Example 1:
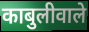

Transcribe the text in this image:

काबुलीवाले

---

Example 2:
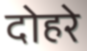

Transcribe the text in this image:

दोहरे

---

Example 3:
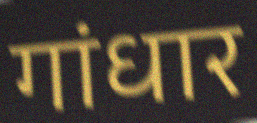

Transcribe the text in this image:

गांधार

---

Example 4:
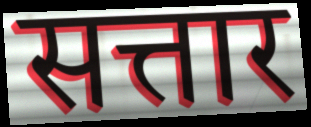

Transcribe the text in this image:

सत्तार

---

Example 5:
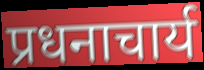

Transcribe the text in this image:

प्रधनाचार्य